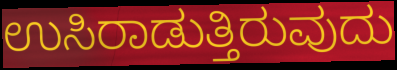
ಉಸಿರಾಡುತ್ತಿರುವುದು